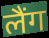
लैंग